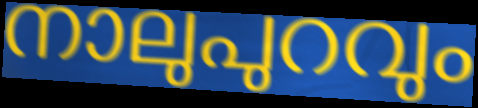
നാലുപുറവും